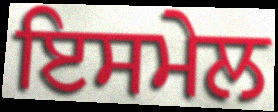
ਇਸਮੇਲ